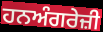
ਹਨਅੰਗਰੇਜ਼ੀ